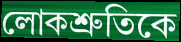
লোকশ্রুতিকে